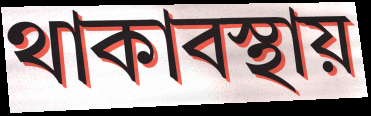
থাকাবস্থায়